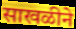
साखळीने